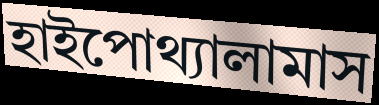
হাইপোথ্যালামাস